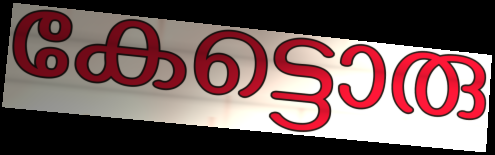
കേട്ടൊരു